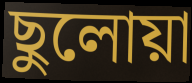
ছুলোয়া